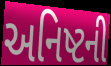
અનિષ્ટની